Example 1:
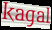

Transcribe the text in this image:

kagal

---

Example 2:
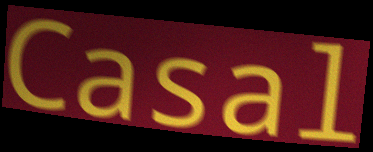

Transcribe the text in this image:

Casal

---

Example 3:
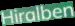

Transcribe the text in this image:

Hiralben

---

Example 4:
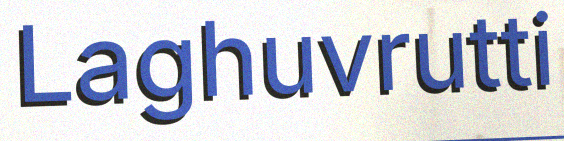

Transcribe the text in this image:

Laghuvrutti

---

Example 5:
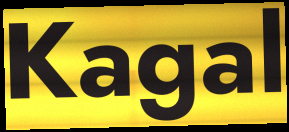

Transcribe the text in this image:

Kagal